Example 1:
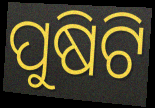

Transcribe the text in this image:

ପୁଷିଟି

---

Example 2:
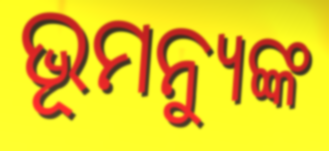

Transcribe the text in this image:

ଭୂମନ୍ୟୁଙ୍କ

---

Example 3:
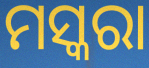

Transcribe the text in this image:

ମସ୍କରା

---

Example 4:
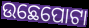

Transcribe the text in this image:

ଉଛେପୋଟା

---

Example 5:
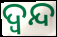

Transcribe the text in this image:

ଦ୍ବନ୍ଦ